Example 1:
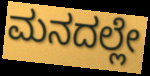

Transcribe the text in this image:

ಮನದಲ್ಲೇ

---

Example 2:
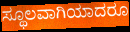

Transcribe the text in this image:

ಸ್ಥೂಲವಾಗಿಯಾದರೂ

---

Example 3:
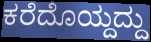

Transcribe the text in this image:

ಕರೆದೊಯ್ದದ್ದು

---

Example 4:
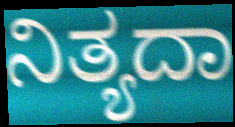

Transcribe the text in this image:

ನಿತ್ಯದಾ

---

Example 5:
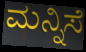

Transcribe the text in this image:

ಮನ್ನಿಸೆ